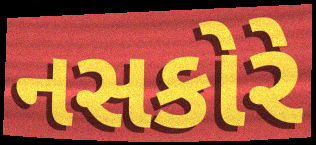
નસકોરે